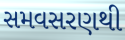
સમવસરણથી